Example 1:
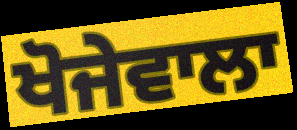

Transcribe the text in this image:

ਖੋਜੇਵਾਲਾ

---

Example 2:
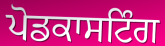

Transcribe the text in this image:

ਪੋਡਕਾਸਟਿੰਗ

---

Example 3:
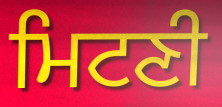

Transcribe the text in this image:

ਮਿਟਣੀ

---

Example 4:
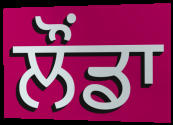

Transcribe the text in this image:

ਲੌਂਡਾ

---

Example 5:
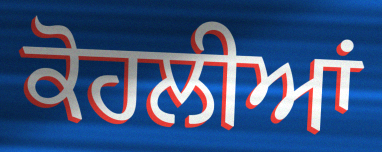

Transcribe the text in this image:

ਕੋਹਲੀਆਂ